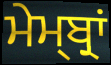
ਮੇਮ੍ਬ੍ਰਾਂ